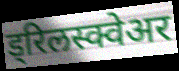
ड्रिलस्क्वेअर